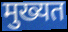
मुख्‍यत